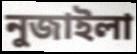
নুজাইলা